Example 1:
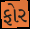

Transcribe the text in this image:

ફોર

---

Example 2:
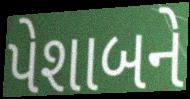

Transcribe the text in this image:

પેશાબને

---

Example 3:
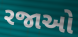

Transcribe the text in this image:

રજાઓ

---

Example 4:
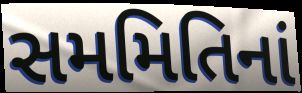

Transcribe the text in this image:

સમમિતિનાં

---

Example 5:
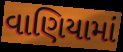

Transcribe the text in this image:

વાણિયામાં